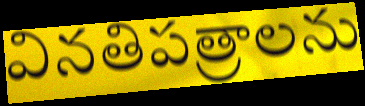
వినతిపత్రాలను